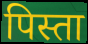
पिस्ता